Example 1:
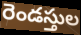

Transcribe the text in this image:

రెండస్తుల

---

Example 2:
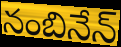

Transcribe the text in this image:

నంబినేన్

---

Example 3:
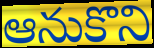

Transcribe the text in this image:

ఆనుకొని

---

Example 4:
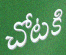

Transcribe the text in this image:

చోటకి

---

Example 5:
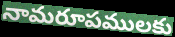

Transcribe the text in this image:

నామరూపములకు